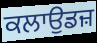
ਕਲਾਉਡਜ਼